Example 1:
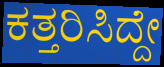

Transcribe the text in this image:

ಕತ್ತರಿಸಿದ್ದೇ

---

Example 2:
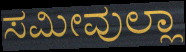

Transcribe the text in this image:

ಸಮೀವುಲ್ಲಾ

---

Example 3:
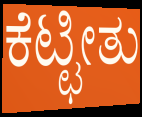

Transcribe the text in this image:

ಕೆಟ್ಟೀತು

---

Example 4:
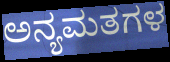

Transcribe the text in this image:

ಅನ್ಯಮತಗಳ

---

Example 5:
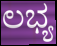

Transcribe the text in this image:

ಲಭ್ಯ